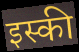
इस्की